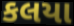
કલયા